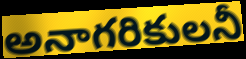
అనాగరికులనీ